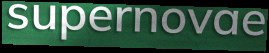
supernovae